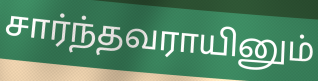
சார்ந்தவராயினும்